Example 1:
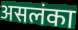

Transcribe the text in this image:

असलंका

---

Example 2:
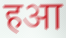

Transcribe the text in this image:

हआ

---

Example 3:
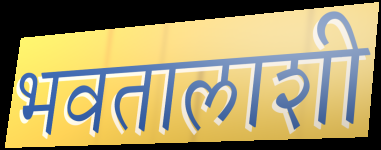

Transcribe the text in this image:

भवतालाशी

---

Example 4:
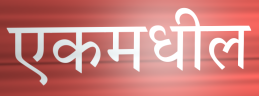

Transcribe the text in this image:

एकमधील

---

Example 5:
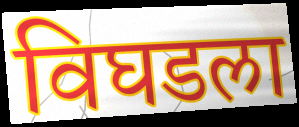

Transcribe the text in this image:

विघडला